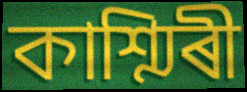
কাশ্মিৰী